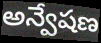
అన్వేషణ